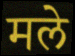
मले